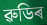
ৱুডিৰ